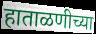
हाताळणीच्या